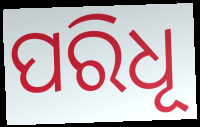
ପରିଧୂ